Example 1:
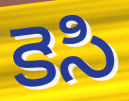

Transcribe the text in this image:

కెసి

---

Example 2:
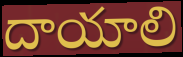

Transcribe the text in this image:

దాయాలి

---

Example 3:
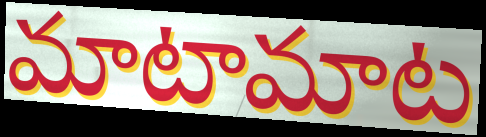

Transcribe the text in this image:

మాటామాట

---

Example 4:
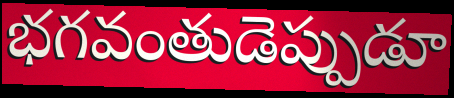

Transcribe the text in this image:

భగవంతుడెప్పుడూ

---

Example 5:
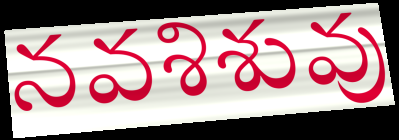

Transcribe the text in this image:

నవశిశువు